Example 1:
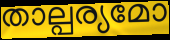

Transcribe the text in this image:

താല്പര്യമോ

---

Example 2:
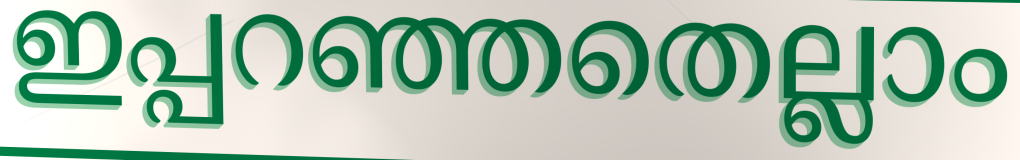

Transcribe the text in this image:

ഇപ്പറഞ്ഞതെല്ലാം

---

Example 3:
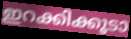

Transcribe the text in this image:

ഇറക്കിക്കൂടാ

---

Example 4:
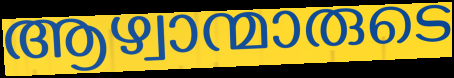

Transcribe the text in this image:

ആഴ്വാന്മാരുടെ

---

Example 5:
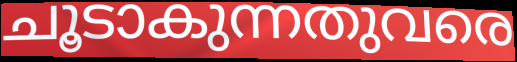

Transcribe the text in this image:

ചൂടാകുന്നതുവരെ